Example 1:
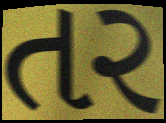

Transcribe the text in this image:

તર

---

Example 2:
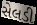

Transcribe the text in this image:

સેલડી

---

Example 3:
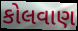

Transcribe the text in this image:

કોલવાણ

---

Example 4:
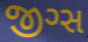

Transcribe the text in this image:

જીગ્સ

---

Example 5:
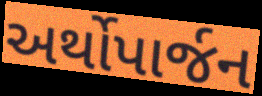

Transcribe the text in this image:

અર્થોપાર્જન